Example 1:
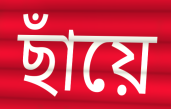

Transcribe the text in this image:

ছাঁয়ে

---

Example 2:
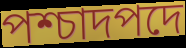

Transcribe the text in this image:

পশ্চাদপদে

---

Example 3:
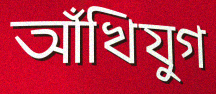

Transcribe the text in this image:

আঁখিযুগ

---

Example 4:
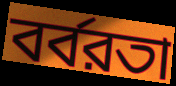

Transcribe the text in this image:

বর্বরতা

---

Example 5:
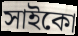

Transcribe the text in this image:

সাইকো